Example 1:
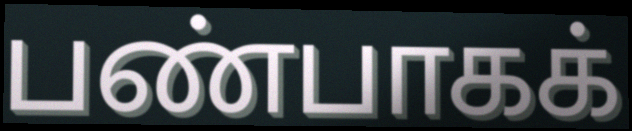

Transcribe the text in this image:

பண்பாகக்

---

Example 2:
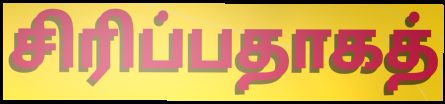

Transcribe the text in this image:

சிரிப்பதாகத்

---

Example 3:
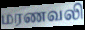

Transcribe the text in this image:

மரணவலி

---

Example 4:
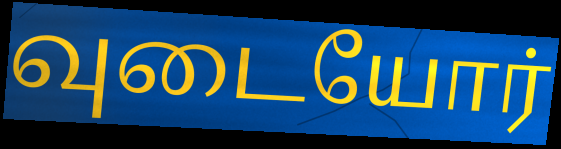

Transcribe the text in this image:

வுடையோர்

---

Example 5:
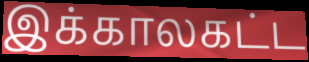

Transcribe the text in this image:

இக்காலகட்ட